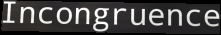
Incongruence